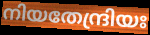
നിയതേന്ദ്രിയഃ